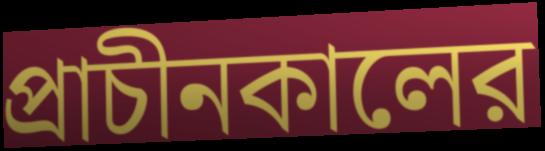
প্রাচীনকালের